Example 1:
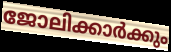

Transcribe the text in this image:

ജോലിക്കാർക്കും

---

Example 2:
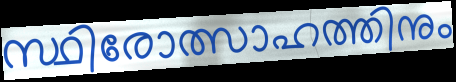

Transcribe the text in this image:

സ്ഥിരോത്സാഹത്തിനും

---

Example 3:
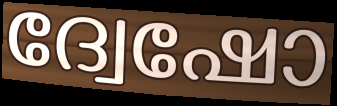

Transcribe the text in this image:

ദ്വേഷോ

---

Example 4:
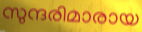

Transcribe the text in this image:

സുന്ദരിമാരായ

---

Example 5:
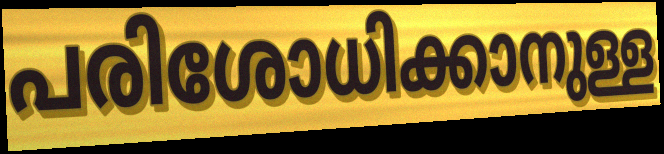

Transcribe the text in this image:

പരിശോധിക്കാനുള്ള